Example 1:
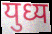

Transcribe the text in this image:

युध्य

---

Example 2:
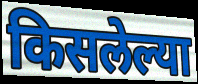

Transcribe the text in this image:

किसलेल्या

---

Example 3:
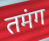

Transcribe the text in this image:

तमंग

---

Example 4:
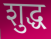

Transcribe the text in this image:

शुद्ध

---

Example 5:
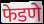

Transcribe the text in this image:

फेडणे